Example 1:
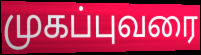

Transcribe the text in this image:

முகப்புவரை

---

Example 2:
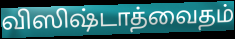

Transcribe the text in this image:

விஸிஷ்டாத்வைதம்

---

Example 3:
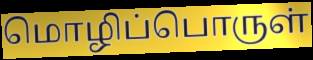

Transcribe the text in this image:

மொழிப்பொருள்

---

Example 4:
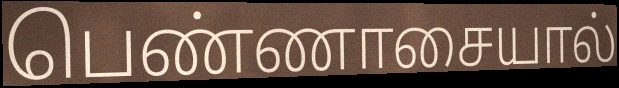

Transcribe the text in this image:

பெண்ணாசையால்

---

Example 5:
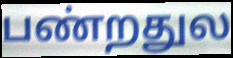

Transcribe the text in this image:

பண்றதுல